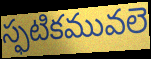
స్ఫటికమువలె